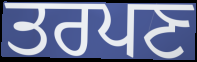
ਤਰਪਣ